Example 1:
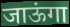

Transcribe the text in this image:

जाऊंगा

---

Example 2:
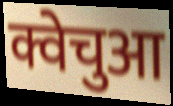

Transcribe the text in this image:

क्वेचुआ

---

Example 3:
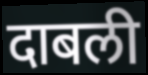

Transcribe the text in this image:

दाबली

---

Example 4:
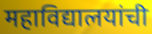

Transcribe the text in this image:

महाविद्यालयांची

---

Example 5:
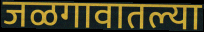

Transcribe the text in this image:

जळगावातल्या